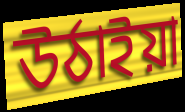
উঠাইয়া